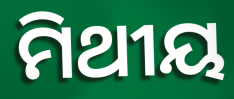
ମିଥୀୟ